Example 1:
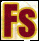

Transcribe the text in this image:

Fs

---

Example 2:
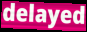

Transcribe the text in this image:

delayed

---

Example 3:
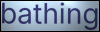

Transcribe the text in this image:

bathing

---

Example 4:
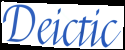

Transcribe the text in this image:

Deictic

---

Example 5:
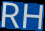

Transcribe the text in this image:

RH